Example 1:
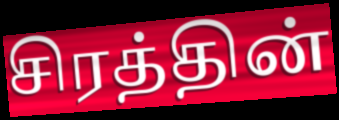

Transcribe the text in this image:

சிரத்தின்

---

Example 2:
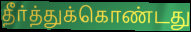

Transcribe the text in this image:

தீர்த்துக்கொண்டது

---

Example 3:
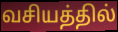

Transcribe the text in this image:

வசியத்தில்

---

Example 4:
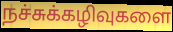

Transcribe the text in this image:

நச்சுக்கழிவுகளை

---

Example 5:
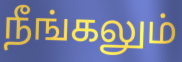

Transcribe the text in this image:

நீங்கலும்